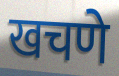
खचणे